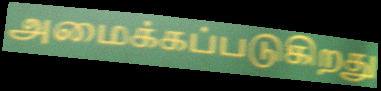
அமைக்கப்படுகிறது